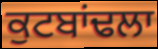
ਕੁਟਬਾਂਢਲਾ